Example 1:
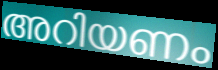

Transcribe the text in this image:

അറിയണം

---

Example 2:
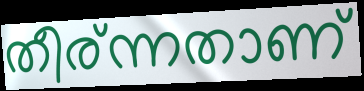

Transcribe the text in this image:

തീര്ന്നതാണ്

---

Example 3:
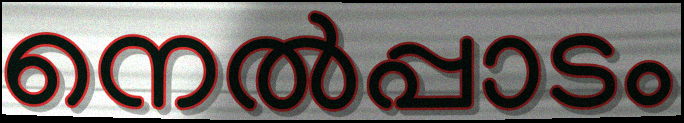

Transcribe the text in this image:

നെൽപ്പാടം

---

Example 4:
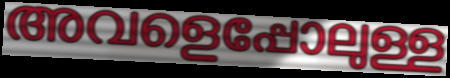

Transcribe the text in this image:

അവളെപ്പോലുള്ള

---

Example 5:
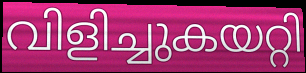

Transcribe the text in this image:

വിളിച്ചുകയറ്റി